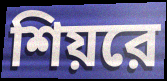
শিয়রে